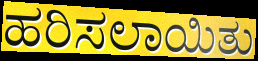
ಹರಿಸಲಾಯಿತು